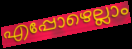
എപ്പോഴെല്ലാം